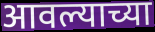
आवल्याच्या